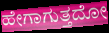
ಹೇಗಾಗುತ್ತದೋ